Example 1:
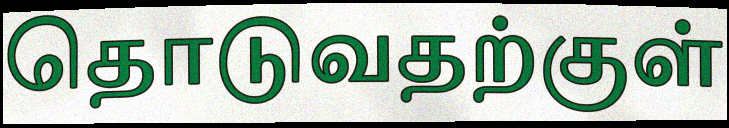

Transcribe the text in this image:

தொடுவதற்குள்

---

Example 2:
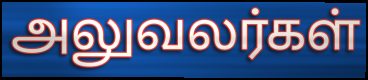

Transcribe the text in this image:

அலுவலர்கள்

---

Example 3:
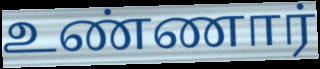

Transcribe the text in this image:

உண்ணார்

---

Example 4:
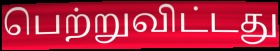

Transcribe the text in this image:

பெற்றுவிட்டது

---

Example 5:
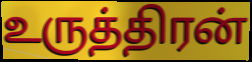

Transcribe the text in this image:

உருத்திரன்